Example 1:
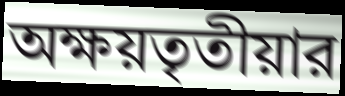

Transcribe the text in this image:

অক্ষয়তৃতীয়ার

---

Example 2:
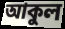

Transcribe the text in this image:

আকুল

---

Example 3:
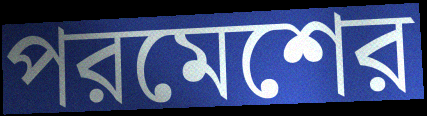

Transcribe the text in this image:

পরমেশের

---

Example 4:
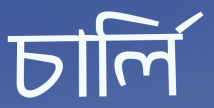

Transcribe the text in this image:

চার্লি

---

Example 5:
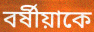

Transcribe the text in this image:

বর্ষীয়াকে